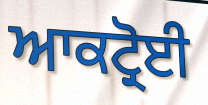
ਆਕਟ੍ਰੋਈ